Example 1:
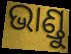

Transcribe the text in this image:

ଭାଣ୍ଡୁ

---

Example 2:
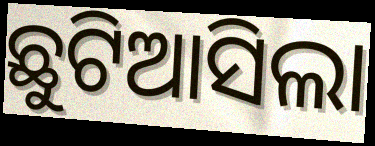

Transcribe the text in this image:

ଛୁଟିଆସିଲା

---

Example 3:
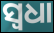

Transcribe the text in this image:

ସ୍ୱଧା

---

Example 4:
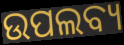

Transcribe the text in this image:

ଉପଲବ୍ୟ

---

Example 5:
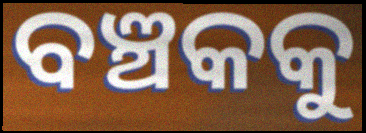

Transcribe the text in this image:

ବଞ୍ଚକକୁ